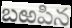
బఱపిన